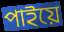
পাইয়ে